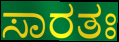
ಸಾರತಃ